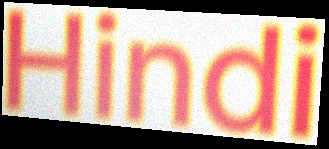
Hindi